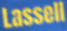
Lassell